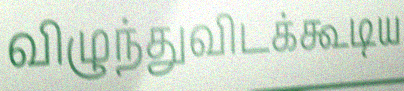
விழுந்துவிடக்கூடிய